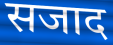
सजाद